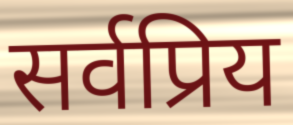
सर्वप्रिय